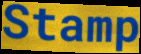
Stamp